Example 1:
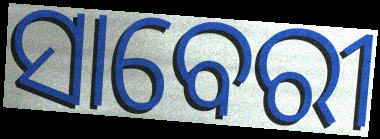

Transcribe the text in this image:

ସାବେରୀ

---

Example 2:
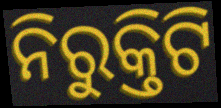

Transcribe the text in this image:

ନିରୁକ୍ତିଟି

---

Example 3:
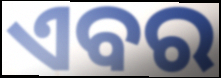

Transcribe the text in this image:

ଏବର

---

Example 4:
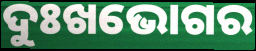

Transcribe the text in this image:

ଦୁଃଖଭୋଗର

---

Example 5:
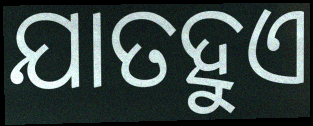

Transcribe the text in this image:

ଯାତହୁଏ